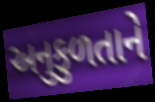
અનુકુળતાને